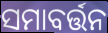
ସମାବର୍ତ୍ତନ